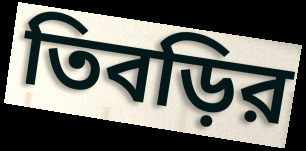
তিবড়ির